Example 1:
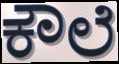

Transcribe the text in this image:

ಕೌಲೆ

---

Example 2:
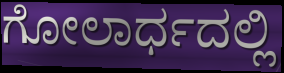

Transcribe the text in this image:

ಗೋಲಾರ್ಧದಲ್ಲಿ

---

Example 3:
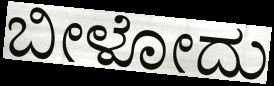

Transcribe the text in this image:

ಬೀಳೋದು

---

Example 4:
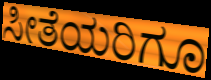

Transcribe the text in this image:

ಸೀತೆಯರಿಗೂ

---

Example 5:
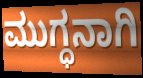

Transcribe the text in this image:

ಮುಗ್ಧನಾಗಿ